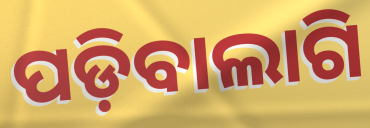
ପଡ଼ିବାଲାଗି